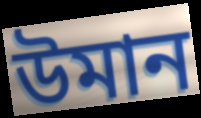
উমান